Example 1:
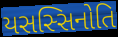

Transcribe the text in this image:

યસસ્સિનોતિ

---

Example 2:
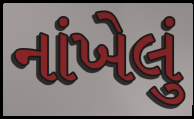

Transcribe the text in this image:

નાંખેલું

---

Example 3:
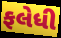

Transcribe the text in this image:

ફલેધી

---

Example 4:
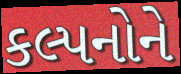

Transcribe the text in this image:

કલ્પનોને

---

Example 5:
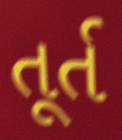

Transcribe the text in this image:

તૂર્ત